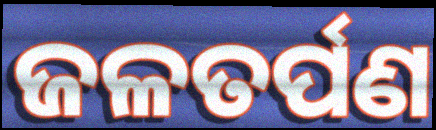
ଜଳତର୍ପଣ